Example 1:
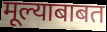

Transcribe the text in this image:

मूल्याबाबत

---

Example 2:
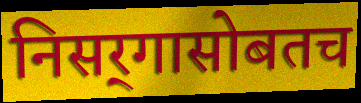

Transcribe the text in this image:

निसर्गासोबतच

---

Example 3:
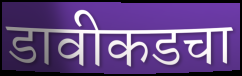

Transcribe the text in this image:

डावीकडचा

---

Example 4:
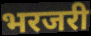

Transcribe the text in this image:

भरजरी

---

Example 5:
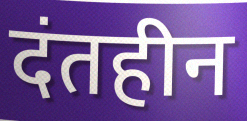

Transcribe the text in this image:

दंतहीन